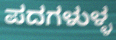
ಪದಗಳುಳ್ಳ